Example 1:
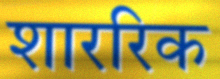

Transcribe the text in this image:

शाररिक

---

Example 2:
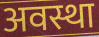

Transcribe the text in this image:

अवस्था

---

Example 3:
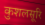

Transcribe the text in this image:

कुशलसूरि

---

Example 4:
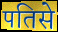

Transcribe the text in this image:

पतिसे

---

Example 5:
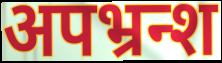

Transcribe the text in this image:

अपभ्रन्श